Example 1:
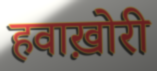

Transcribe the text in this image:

हवाख़ोरी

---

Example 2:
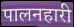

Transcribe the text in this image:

पालनहारी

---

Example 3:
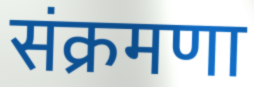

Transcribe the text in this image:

संक्रमणा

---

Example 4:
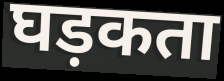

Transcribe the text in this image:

घड़कता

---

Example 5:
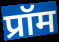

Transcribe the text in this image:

प्रॉम